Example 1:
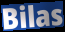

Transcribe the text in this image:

Bilas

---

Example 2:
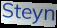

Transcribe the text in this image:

Steyn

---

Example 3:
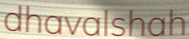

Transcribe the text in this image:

dhavalshah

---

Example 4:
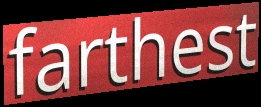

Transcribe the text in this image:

farthest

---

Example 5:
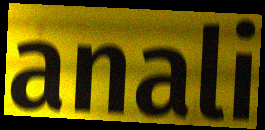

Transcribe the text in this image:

anali